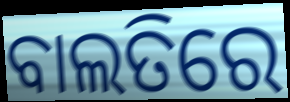
ବାଲତିରେ